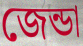
জেন্ডা